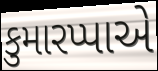
કુમારપ્પાએ